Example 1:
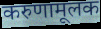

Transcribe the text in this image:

करुणामूलक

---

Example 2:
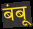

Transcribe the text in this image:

बंबू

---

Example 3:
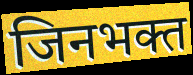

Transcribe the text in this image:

जिनभक्त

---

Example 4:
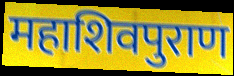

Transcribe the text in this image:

महाशिवपुराण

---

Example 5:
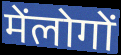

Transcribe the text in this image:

मेंलोगों